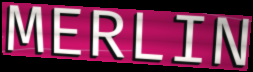
MERLIN